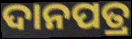
ଦାନପତ୍ର